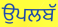
ਉਪਲਬੱ